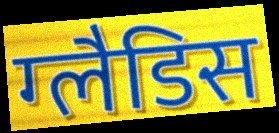
ग्लैडिस